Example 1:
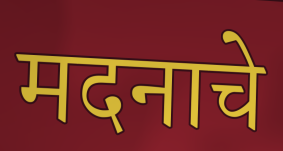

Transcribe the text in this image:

मदनाचे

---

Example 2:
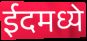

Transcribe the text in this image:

ईदमध्ये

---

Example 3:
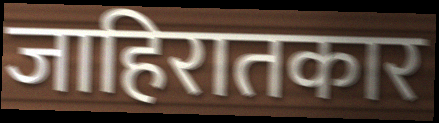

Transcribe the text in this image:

जाहिरातकार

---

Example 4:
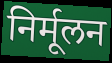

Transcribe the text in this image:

निर्मूलन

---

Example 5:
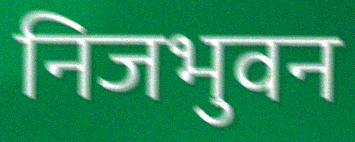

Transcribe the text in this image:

निजभुवन